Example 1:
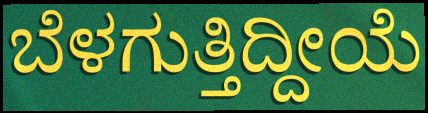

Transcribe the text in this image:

ಬೆಳಗುತ್ತಿದ್ದೀಯೆ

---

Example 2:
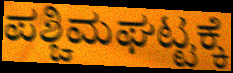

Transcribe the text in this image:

ಪಶ್ಚಿಮಘಟ್ಟಕ್ಕೆ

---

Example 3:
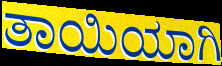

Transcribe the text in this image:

ತಾಯಿಯಾಗಿ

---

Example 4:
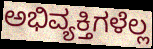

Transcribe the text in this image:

ಅಭಿವ್ಯಕ್ತಿಗಳೆಲ್ಲ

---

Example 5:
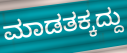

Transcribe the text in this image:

ಮಾಡತಕ್ಕದ್ದು